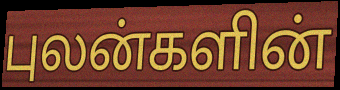
புலன்களின்